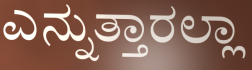
ಎನ್ನುತ್ತಾರಲ್ಲಾ